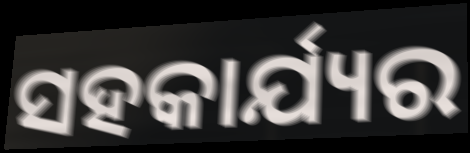
ସହକାର୍ଯ୍ୟର